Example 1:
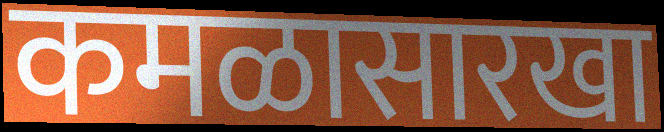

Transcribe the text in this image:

कमळासारखा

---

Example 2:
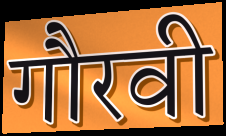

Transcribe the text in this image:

गौरवी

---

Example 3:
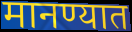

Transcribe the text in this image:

मानण्यात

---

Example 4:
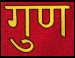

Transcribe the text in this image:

गुण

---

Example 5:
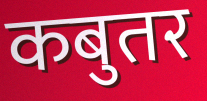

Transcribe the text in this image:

कबुतर